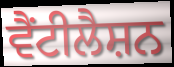
ਵੈਂਟੀਲੈਸ਼ਨ